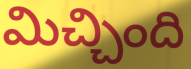
మిచ్చింది